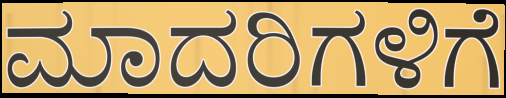
ಮಾದರಿಗಳಿಗೆ